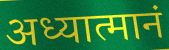
अध्यात्मानं